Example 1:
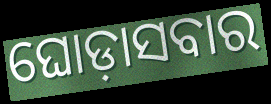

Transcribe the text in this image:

ଘୋଡ଼ାସବାର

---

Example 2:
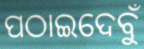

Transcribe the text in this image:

ପଠାଇଦେବୁଁ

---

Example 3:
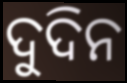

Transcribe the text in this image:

ଦୁଦିନ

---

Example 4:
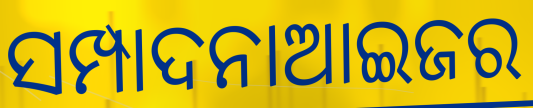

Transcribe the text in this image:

ସମ୍ପାଦନାଆଇଜର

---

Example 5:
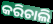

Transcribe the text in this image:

କରିଚାଲି